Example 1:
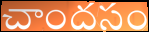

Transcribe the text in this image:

చాందసం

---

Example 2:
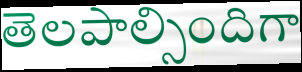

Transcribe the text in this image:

తెలపాల్సిందిగా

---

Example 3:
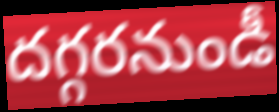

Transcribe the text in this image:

దగ్గరనుండీ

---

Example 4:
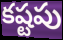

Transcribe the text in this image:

కష్టపు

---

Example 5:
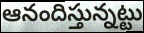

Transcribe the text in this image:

ఆనందిస్తున్నట్టు